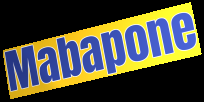
Mabapone